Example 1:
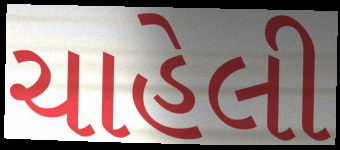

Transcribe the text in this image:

ચાહેલી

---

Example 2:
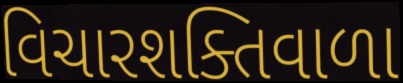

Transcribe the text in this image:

વિચારશક્તિવાળા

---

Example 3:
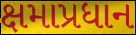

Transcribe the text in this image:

ક્ષમાપ્રધાન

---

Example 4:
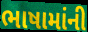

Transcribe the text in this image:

ભાષામાંની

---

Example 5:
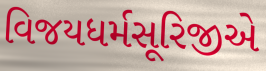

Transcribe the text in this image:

વિજયધર્મસૂરિજીએ